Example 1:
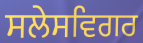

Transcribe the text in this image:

ਸਲੇਸਵਿਗਰ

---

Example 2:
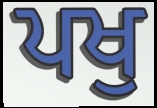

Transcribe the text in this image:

ਪਖੁ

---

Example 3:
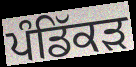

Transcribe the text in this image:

ਪੰਡਿੱਕੜ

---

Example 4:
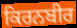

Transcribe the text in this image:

ਕਿਰਨਬੀਰ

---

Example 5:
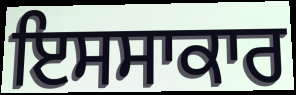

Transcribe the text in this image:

ਇਸਸਾਕਾਰ